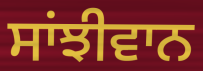
ਸਾਂਝੀਵਾਨ